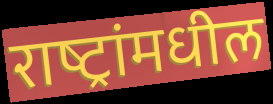
राष्ट्रांमधील